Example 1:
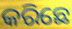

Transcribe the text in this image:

କରିଛେ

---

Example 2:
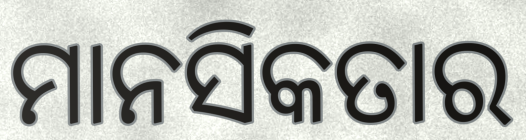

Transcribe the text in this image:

ମାନସିକତାର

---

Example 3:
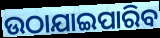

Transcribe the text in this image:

ଉଠାଯାଇପାରିବ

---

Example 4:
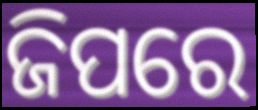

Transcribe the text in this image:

ଜିପରେ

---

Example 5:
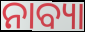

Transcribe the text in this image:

ନାବ୍ୟା